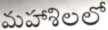
మహాశిలలో